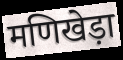
मणिखेड़ा